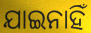
ଯାଇନାହିଁ